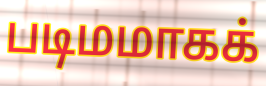
படிமமாகக்